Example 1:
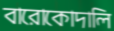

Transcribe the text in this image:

বারোকোদালি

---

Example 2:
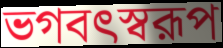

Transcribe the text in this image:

ভগবৎস্বরূপ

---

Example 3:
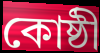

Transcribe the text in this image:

কোষ্ঠী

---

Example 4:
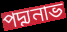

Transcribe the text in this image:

পদ্মনাভ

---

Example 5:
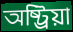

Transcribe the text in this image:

অষ্ট্রিয়া